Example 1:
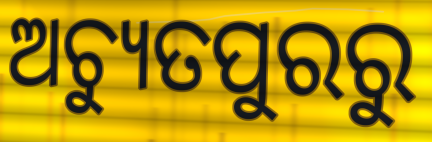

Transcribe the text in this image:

ଅଚ୍ୟୁତପୁରରୁ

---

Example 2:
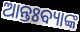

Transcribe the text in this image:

ଆନ୍ତଃବ୍ୟାଙ୍କ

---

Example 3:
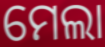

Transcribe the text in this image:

ମେଲା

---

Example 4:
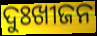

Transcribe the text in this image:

ଦୁଃଖୀଜନ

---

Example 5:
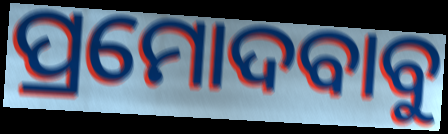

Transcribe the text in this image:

ପ୍ରମୋଦବାବୁ